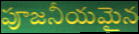
పూజనీయమైన